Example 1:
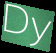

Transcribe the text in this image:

Dy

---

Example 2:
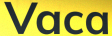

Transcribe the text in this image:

Vaca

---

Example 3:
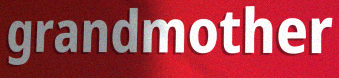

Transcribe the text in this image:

grandmother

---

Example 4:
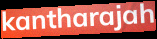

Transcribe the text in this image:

kantharajah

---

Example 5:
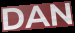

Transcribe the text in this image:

DAN